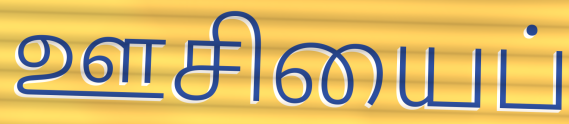
ஊசியைப்